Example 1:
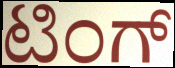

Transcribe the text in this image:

ಟಿಂಗ್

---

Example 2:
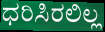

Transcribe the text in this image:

ಧರಿಸಿರಲಿಲ್ಲ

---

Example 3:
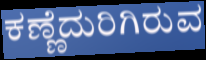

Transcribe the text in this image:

ಕಣ್ಣೆದುರಿಗಿರುವ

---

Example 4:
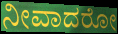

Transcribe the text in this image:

ನೀವಾದರೋ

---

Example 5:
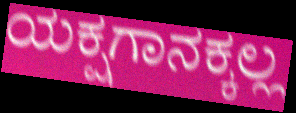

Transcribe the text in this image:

ಯಕ್ಷಗಾನಕ್ಕಲ್ಲ